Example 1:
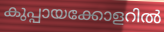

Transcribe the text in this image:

കുപ്പായക്കോളറിൽ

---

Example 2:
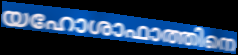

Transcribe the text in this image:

യഹോശാഫാത്തിനെ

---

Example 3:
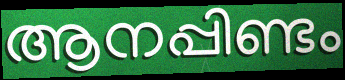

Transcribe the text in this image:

ആനപ്പിണ്ടം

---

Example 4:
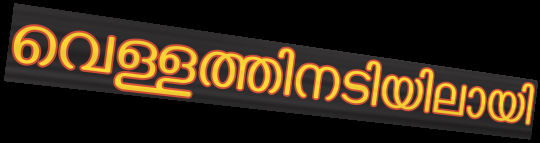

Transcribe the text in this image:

വെള്ളത്തിനടിയിലായി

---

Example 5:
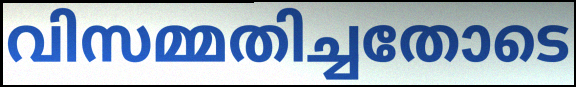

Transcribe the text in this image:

വിസമ്മതിച്ചതോടെ